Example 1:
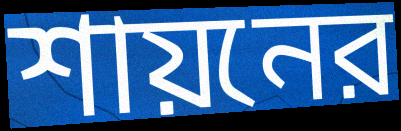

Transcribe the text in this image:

শায়নের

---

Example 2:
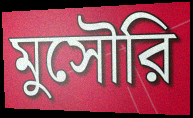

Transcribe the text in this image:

মুসৌরি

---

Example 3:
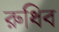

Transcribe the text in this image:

রুধিব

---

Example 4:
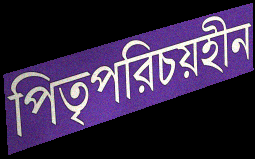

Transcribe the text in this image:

পিতৃপরিচয়হীন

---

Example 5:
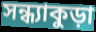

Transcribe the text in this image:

সন্ধ্যাকুড়া